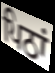
ਪਿਠਾਂ